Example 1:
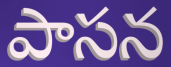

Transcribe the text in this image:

పాసన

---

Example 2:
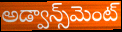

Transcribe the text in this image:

అడ్వాన్స్‌మెంట్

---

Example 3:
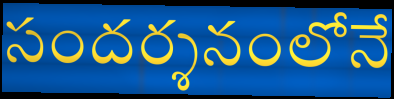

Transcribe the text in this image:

సందర్శనంలోనే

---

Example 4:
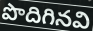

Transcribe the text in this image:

పొదిగినవి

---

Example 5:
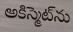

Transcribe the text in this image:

అకిస్మెట్‌ను